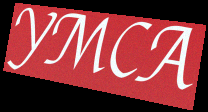
YMCA